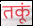
तकूं